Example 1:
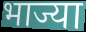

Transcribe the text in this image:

भाज्या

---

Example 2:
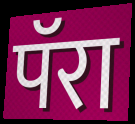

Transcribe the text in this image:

पॅरा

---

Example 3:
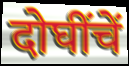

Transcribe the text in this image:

दोघींचें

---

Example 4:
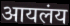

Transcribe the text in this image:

आयलंय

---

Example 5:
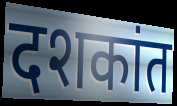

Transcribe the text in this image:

दशकांत